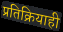
प्रतिक्रियाही